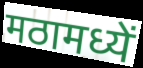
मठामध्यें